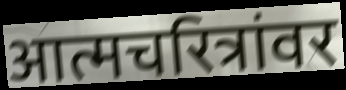
आत्मचरित्रांवर